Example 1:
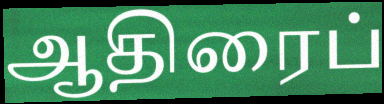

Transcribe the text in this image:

ஆதிரைப்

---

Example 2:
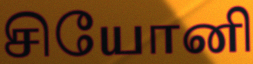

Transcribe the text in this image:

சியோனி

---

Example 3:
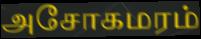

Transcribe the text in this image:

அசோகமரம்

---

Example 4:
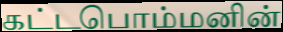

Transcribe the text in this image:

கட்டபொம்மனின்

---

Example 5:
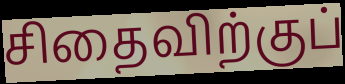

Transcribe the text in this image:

சிதைவிற்குப்